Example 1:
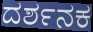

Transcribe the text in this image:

ದರ್ಶನಕ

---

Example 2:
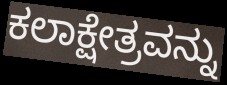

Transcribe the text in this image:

ಕಲಾಕ್ಷೇತ್ರವನ್ನು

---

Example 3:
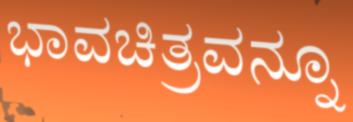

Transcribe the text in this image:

ಭಾವಚಿತ್ರವನ್ನೂ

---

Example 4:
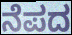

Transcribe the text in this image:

ನೆಪದ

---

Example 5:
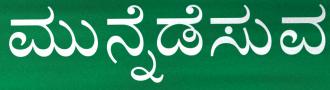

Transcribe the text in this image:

ಮುನ್ನೆಡೆಸುವ